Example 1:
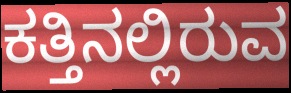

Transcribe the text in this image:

ಕತ್ತಿನಲ್ಲಿರುವ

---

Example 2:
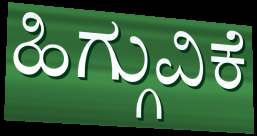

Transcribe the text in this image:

ಹಿಗ್ಗುವಿಕೆ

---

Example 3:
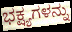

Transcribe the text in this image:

ಭಕ್ಷ್ಯಗಳನ್ನು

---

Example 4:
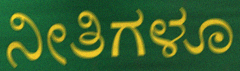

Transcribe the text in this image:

ನೀತಿಗಳೂ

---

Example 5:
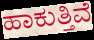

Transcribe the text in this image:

ಹಾಕುತ್ತಿವೆ